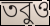
তবুও